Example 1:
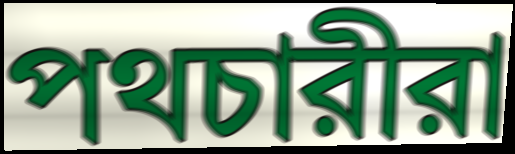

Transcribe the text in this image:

পথচারীরা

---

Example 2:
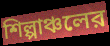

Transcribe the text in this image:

শিল্পাঞ্চলের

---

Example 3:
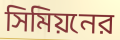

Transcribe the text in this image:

সিমিয়নের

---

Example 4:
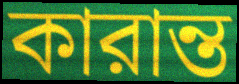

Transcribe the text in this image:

কারান্ত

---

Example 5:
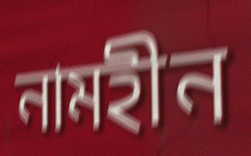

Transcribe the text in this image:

নামহীন